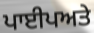
ਪਾਈਪਅਤੇ